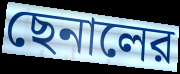
ছেনালের